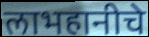
लाभहानीचे